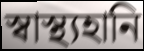
স্বাস্থ্যহানি